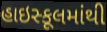
હાઇસ્કૂલમાંથી